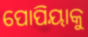
ପୋପିୟାକୁ